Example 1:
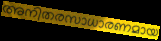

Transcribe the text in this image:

അനിതരസാധാരണമായ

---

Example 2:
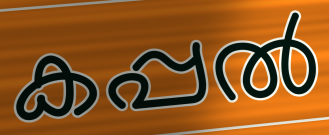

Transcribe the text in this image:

കപ്പൽ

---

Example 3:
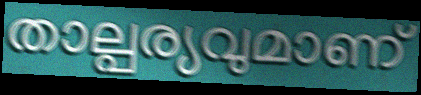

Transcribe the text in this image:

താല്പര്യവുമാണ്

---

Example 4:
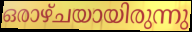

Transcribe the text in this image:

ഒരാഴ്ചയായിരുന്നു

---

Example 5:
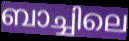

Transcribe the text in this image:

ബാച്ചിലെ